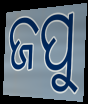
ଜପୁ